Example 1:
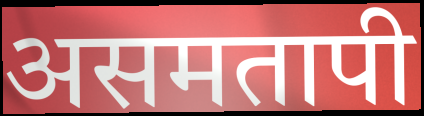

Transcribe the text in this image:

असमतापी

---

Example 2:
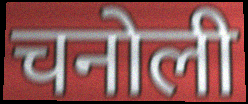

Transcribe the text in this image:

चनोली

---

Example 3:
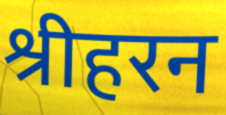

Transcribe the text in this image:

श्रीहरन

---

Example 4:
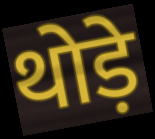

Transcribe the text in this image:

थोड़े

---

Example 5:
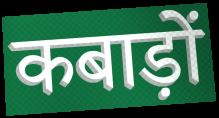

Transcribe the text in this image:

कबाड़ों